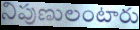
నిపుణులంటారు